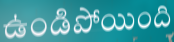
ఉండిపోయింది